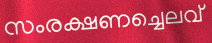
സംരക്ഷണച്ചെലവ്